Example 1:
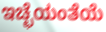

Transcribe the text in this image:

ಇಚ್ಛೆಯಂತೆಯೆ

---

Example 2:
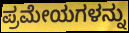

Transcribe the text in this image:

ಪ್ರಮೇಯಗಳನ್ನು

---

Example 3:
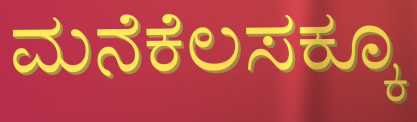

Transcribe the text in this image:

ಮನೆಕೆಲಸಕ್ಕೂ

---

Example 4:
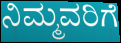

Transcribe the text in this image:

ನಿಮ್ಮವರಿಗೆ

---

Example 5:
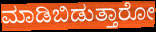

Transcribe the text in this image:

ಮಾಡಿಬಿಡುತ್ತಾರೋ